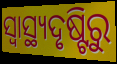
ସ୍ୱାସ୍ଥ୍ୟଦୃଷ୍ଟିରୁ